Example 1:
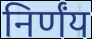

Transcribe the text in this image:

निर्णंय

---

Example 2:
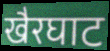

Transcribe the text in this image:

खैरघाट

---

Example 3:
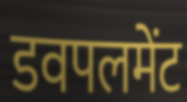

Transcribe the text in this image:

डवपलमेंट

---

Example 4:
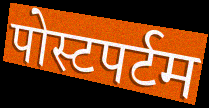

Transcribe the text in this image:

पोस्टपर्टम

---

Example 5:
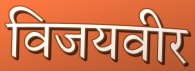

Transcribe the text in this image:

विजयवीर